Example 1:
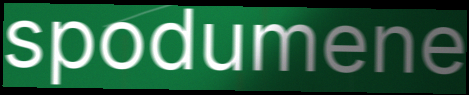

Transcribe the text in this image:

spodumene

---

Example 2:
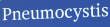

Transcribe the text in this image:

Pneumocystis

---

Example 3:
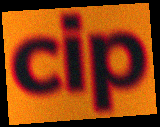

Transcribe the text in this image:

cip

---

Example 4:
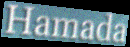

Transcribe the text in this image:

Hamada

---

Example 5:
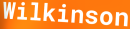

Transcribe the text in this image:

Wilkinson